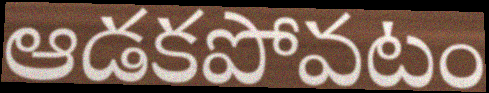
ఆడకపోవటం